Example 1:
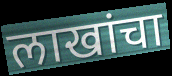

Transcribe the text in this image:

लाखांचा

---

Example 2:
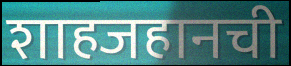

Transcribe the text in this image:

शाहजहानची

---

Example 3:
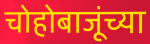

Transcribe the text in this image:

चोहोबाजूंच्या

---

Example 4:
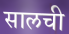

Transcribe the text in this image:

सालची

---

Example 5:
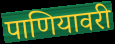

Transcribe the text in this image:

पाणियावरी